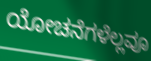
ಯೋಚನೆಗಳೆಲ್ಲವೂ